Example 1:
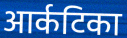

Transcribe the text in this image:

आर्कटिका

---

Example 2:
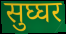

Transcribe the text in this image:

सुघ्घर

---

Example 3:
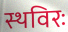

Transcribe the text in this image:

स्थविरः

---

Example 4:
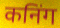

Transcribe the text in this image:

कनिंग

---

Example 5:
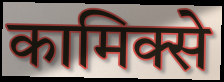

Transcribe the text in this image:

कामिक्से